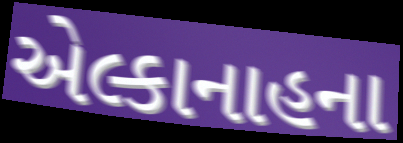
એલ્કાનાહના